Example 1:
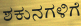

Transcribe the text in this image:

ಶಕುನಗಳಿಗೆ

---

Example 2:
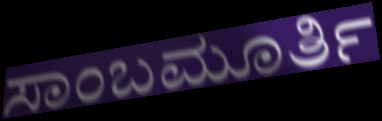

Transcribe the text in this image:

ಸಾಂಬಮೂರ್ತಿ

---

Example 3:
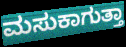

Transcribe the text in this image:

ಮಸುಕಾಗುತ್ತಾ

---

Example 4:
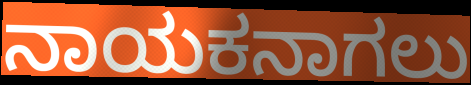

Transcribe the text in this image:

ನಾಯಕನಾಗಲು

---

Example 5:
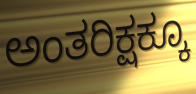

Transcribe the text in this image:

ಅಂತರಿಕ್ಷಕ್ಕೂ